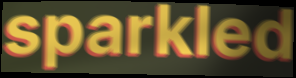
sparkled